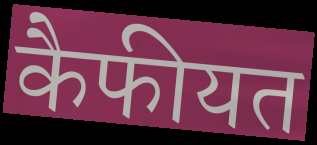
कैफीयत